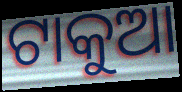
ଟାକୁଆ